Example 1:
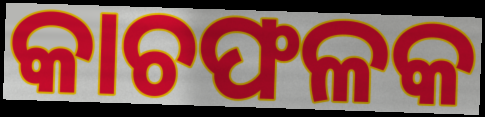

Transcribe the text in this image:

କାଚଫଳକ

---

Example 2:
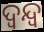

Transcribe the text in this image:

ଦ୍ବନ୍ଦ୍ବ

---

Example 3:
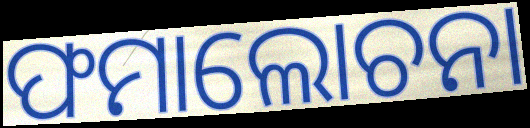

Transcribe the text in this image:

ଫମାଲୋଚନା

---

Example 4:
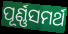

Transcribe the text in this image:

ପୂର୍ଣ୍ଣସମର୍ଥ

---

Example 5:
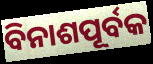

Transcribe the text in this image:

ବିନାଶପୂର୍ବକ